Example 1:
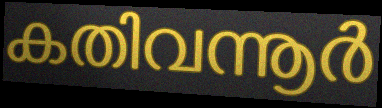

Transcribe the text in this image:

കതിവന്നൂർ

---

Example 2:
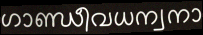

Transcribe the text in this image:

ഗാണ്ഡീവധന്വനാ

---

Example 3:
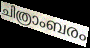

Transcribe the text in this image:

ചിത്രാംബരം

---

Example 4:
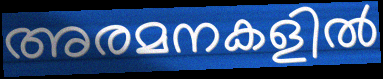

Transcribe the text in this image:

അരമനകളിൽ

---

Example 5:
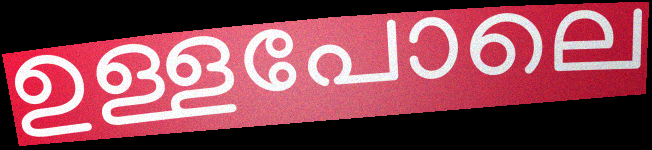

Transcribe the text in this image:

ഉള്ളപോലെ